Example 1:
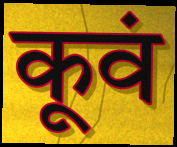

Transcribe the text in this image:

कूवं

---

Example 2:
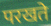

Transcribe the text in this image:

परखते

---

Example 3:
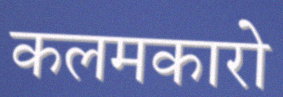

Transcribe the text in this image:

कलमकारो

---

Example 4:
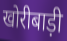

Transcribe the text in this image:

खोरीबाड़ी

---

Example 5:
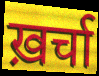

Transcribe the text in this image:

ख़र्चा